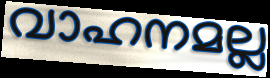
വാഹനമല്ല